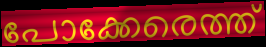
പോക്കേരെത്ത്